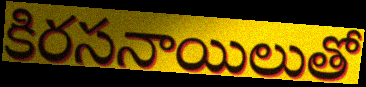
కిరసనాయిలుతో